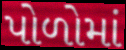
પોળોમાં